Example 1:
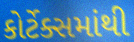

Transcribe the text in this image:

કોર્ટેક્સમાંથી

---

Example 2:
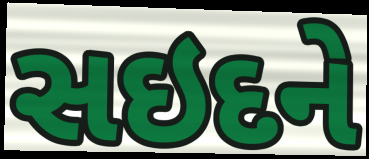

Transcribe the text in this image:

સઇદને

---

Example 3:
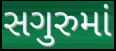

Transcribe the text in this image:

સગુરુમાં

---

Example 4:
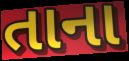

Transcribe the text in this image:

તાના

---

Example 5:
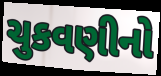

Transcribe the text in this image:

ચુકવણીનો